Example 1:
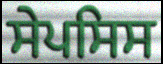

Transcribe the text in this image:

ਸੇਪਸਿਸ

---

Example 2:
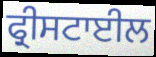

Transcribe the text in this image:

ਫ੍ਰੀਸਟਾਈਲ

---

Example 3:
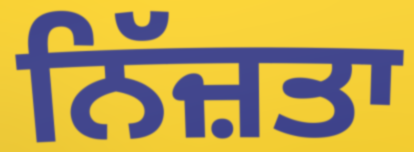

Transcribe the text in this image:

ਨਿੱਜ਼ਤਾ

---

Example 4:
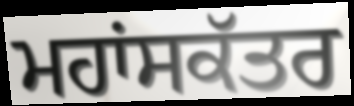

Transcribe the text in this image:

ਮਹਾਂਸਕੱਤਰ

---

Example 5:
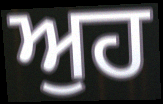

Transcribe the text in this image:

ਅੁਹ